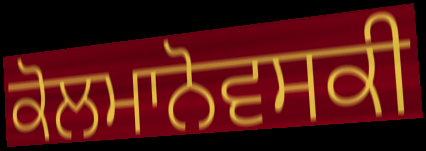
ਕੋਲਮਾਨੋਵਸਕੀ